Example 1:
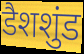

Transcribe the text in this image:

डैशशुंड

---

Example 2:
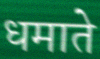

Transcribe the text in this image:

धमाते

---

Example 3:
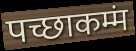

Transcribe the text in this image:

पच्छाकम्मं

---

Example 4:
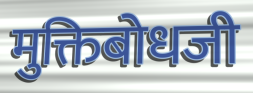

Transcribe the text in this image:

मुक्तिबोधजी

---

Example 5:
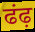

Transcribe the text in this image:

ढंढ़